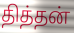
தித்தன்